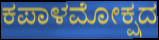
ಕಪಾಳಮೋಕ್ಷದ